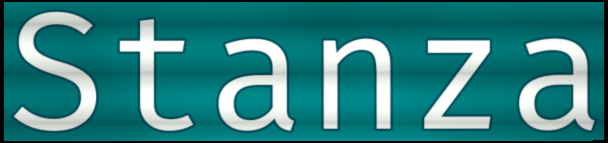
Stanza